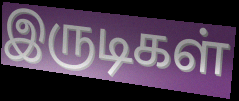
இருடிகள்